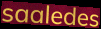
saaledes